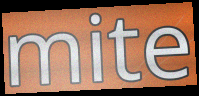
mite